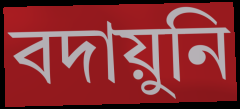
বদায়ুনি